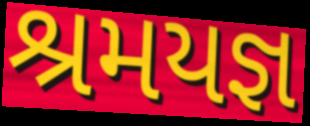
શ્રમયજ્ઞ